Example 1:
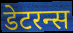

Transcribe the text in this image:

डेटरन्स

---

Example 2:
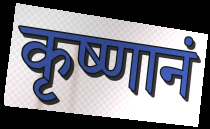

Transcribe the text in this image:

कृष्णानं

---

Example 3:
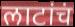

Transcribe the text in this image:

लाटांचं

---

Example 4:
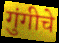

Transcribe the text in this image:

गुंगीचे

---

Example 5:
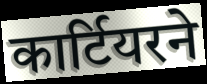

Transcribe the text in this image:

कार्टियरने